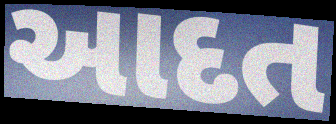
આદત